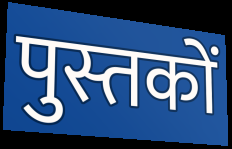
पुस्‍तकों